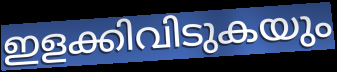
ഇളക്കിവിടുകയും